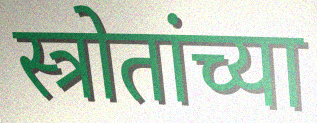
स्त्रोतांच्या